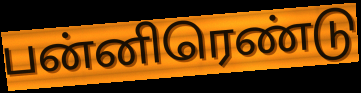
பன்னிரெண்டு